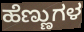
ಹೆಣ್ಣುಗಳ